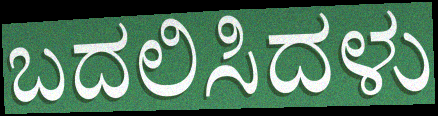
ಬದಲಿಸಿದಳು